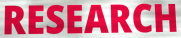
RESEARCH